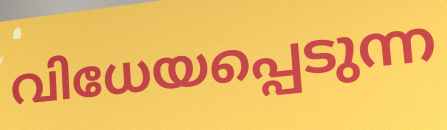
വിധേയപ്പെടുന്ന